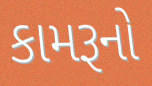
કામરૂનો